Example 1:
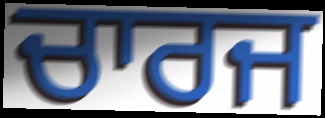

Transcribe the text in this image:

ਚਾਰਜ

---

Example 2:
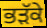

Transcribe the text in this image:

ਭੜੱਕੇ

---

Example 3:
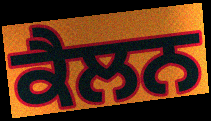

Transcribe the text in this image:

ਕੈਲਨ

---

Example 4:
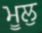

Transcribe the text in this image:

ਮੂਲੁ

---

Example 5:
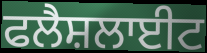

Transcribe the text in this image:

ਫਲੈਸ਼ਲਾਈਟ